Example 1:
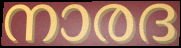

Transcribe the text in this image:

നാരദ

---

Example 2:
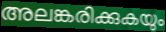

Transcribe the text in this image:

അലങ്കരിക്കുകയും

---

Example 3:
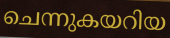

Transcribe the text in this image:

ചെന്നുകയറിയ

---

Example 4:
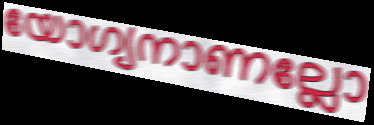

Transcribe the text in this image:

യോഗ്യനാണല്ലോ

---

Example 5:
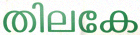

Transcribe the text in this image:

തിലകേ